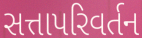
સત્તાપરિવર્તન